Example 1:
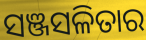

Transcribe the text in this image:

ସଞ୍ଜସଳିତାର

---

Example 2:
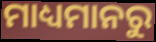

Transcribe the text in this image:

ମାଧ୍ୟମାନରୁ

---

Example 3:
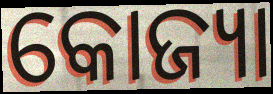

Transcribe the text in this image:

କୋଜ୍ୟା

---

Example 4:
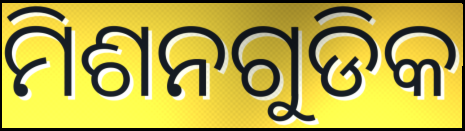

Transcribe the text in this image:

ମିଶନଗୁଡିକ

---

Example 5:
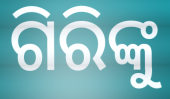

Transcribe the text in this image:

ଗିରିଙ୍କୁ